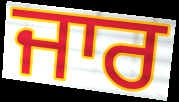
ਜਾਰ